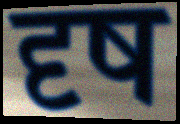
दृष